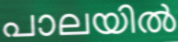
പാലയിൽ